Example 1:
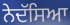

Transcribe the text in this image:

ਨੇਦੱਸਿਆ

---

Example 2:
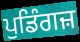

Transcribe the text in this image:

ਪੁਡਿੰਗਜ਼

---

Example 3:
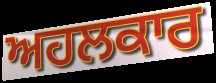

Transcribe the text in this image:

ਅਹਲਕਾਰ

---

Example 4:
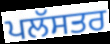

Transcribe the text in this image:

ਪਲੱਸਤਰ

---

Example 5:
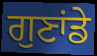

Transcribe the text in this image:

ਗੁਣਾਂਡੇ